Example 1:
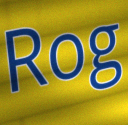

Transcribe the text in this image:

Rog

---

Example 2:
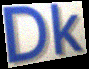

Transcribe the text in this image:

Dk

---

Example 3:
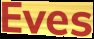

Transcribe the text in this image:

Eves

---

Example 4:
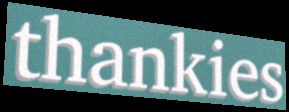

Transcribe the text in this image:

thankies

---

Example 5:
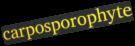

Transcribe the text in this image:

carposporophyte